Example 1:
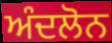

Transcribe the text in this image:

ਅੰਦਲੋਨ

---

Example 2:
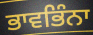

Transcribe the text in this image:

ਭਾਵਭਿੰਨਾ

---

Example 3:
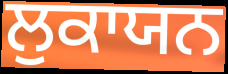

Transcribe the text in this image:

ਲੁਕਾਯਨ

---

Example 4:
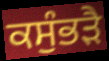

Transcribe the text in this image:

ਕਸੁੰਭੜੈ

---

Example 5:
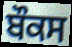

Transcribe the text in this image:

ਬੌਕਸ